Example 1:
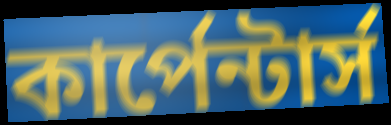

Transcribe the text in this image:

কার্পেন্টার্স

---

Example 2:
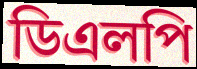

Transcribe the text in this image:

ডিএলপি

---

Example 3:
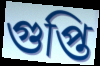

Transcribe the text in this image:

গুপ্তি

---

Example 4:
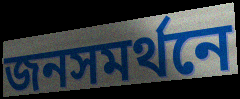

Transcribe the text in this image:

জনসমর্থনে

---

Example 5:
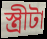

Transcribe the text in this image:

স্ত্রীটা